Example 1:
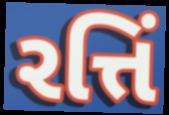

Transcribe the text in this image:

રત્તિં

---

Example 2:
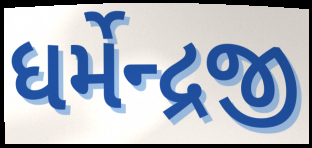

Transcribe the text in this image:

ધર્મેન્દ્રજી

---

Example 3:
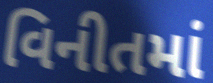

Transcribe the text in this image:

વિનીતમાં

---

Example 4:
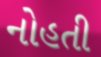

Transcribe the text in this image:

નોહતી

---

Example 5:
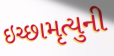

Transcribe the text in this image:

ઇચ્છામૃત્યુની